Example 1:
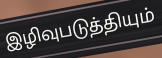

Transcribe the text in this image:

இழிவுபடுத்தியும்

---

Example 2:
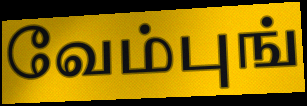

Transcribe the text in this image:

வேம்புங்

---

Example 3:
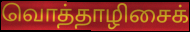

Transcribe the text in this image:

வொத்தாழிசைக்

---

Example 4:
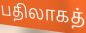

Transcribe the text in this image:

பதிலாகத்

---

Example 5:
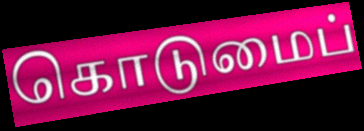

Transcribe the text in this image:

கொடுமைப்